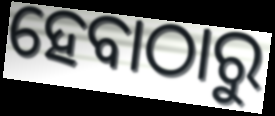
ହେବାଠାରୁ